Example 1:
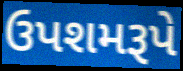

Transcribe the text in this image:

ઉપશમરૂપે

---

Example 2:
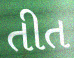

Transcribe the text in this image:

તીત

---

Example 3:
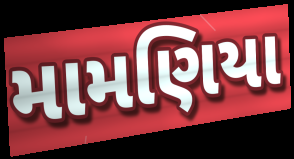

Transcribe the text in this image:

મામણિયા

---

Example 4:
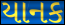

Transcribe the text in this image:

યાનક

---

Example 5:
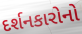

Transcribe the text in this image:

દર્શનકારોનો